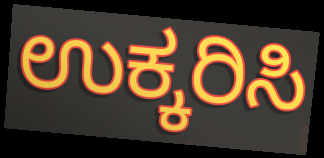
ಉಕ್ಕರಿಸಿ